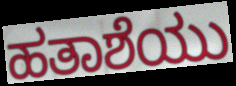
ಹತಾಶೆಯು